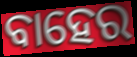
ବାହେର